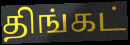
திங்கட்